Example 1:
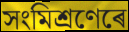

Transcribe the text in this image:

সংমিশ্ৰণেৰে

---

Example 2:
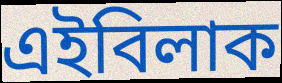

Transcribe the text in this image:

এইবিলাক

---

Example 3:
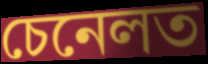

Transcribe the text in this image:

চেনেলত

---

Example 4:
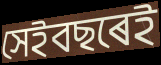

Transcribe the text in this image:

সেইবছৰেই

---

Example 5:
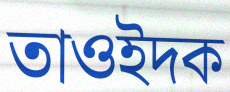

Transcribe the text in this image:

তাওইদক